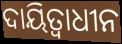
ଦାୟିତ୍ୱାଧୀନ